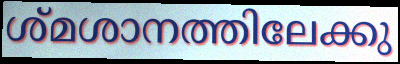
ശ്മശാനത്തിലേക്കു